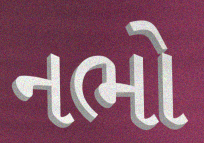
નભો